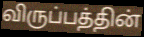
விருப்பத்தின்